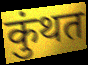
कुंथत